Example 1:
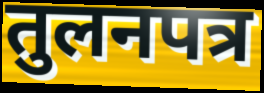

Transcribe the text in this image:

तुलनपत्र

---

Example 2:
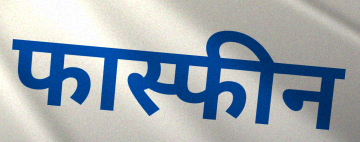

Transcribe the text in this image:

फास्फीन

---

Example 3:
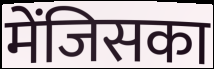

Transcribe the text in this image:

मेंजिसका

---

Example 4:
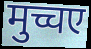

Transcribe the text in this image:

मुच्चए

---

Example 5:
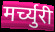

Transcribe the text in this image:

मर्च्युरी